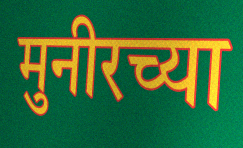
मुनीरच्या